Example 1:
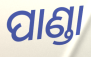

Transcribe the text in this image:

ପାଣ୍ଡା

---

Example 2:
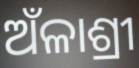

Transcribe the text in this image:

ଅଁଳାଶ୍ରୀ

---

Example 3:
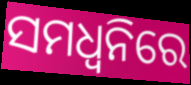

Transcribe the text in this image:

ସମଧ୍ୱନିରେ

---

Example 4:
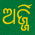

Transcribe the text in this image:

ଅର୍ଜ୍ଜି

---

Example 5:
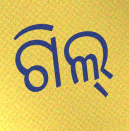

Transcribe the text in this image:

ଗିଲ୍